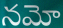
నమో